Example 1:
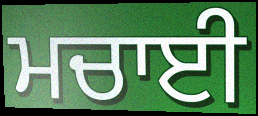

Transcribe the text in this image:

ਮਚਾਈ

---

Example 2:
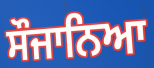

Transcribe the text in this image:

ਸੌਜਾਨਿਆ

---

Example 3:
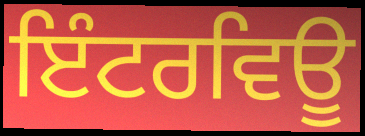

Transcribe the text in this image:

ਇੰਟਰਵਿਊ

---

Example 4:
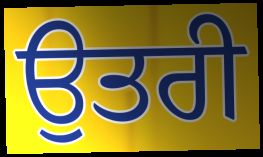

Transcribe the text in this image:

ਉਤਰੀ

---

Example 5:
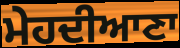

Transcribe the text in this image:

ਮੇਹਦੀਆਣਾ